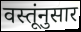
वस्तूंनुसार